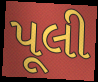
પૂલી